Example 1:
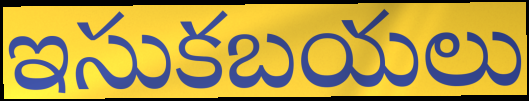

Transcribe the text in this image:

ఇసుకబయలు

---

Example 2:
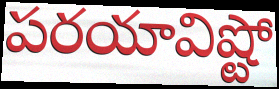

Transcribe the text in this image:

పరయావిష్టో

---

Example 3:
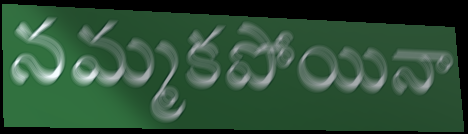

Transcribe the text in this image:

నమ్మకపోయినా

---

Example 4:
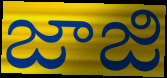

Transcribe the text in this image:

జాజి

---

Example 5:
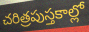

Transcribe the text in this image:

చరిత్రపుస్తకాల్లో